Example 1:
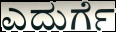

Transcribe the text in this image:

ಎದುರ್ಗೆ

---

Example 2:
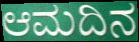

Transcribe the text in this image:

ಆಮದಿನ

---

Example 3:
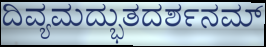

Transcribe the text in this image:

ದಿವ್ಯಮದ್ಭುತದರ್ಶನಮ್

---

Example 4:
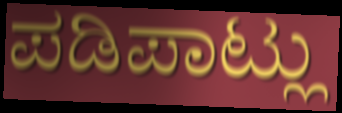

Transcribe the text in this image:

ಪಡಿಪಾಟ್ಲು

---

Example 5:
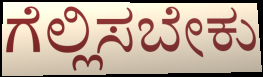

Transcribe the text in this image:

ಗೆಲ್ಲಿಸಬೇಕು